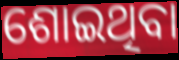
ଶୋଇଥିବା